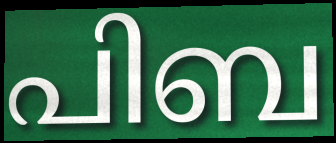
പിബ